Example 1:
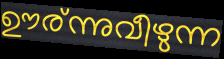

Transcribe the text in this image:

ഊര്ന്നുവീഴുന്ന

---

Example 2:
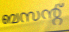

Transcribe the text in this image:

ബസന്റ്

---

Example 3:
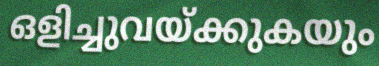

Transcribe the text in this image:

ഒളിച്ചുവയ്ക്കുകയും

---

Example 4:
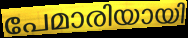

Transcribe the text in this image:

പേമാരിയായി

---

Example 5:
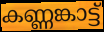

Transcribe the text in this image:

കണ്ണങ്കാട്ട്